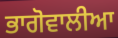
ਭਾਗੋਵਾਲੀਆ